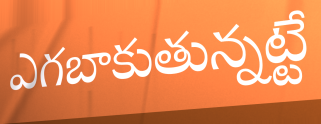
ఎగబాకుతున్నట్టే